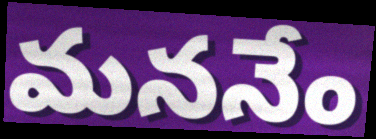
మననేం